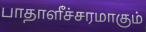
பாதாளீச்சரமாகும்